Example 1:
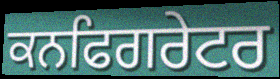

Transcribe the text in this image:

ਕਨਫਿਗਰੇਟਰ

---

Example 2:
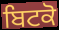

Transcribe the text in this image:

ਬਿਟਕੋ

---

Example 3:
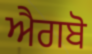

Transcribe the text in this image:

ਐਗਬੋ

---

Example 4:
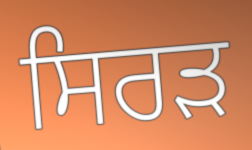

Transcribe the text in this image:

ਸਿਰੜ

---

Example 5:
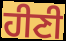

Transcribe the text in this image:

ਹੀਣੀ